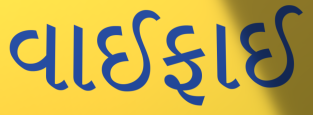
વાઈફાઈ